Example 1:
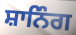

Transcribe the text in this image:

ਸ਼ਾਨਿੰਗ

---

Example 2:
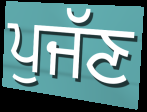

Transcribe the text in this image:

ਪੁਜੱਣ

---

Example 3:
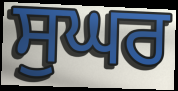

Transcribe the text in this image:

ਸੁਘਰ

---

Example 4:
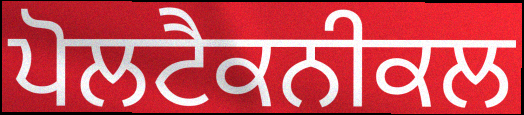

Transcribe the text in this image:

ਪੋਲਟੈਕਨੀਕਲ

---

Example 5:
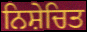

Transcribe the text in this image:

ਨਿਸ਼ੇਚਿਤ